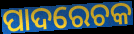
ପାଦରେଚକ